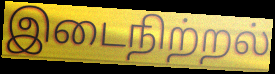
இடைநிற்றல்